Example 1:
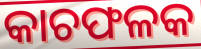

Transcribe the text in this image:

କାଚଫଳକ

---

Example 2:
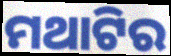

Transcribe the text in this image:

ମଥାଟିର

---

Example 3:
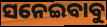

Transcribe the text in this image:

ସନେଇବାବୁ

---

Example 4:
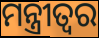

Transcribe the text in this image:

ମନ୍ତ୍ରୀତ୍ୱର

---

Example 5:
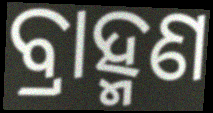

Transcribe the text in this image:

ବ୍ରାହ୍ମଣ